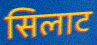
सिलाट